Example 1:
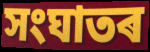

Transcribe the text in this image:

সংঘাতৰ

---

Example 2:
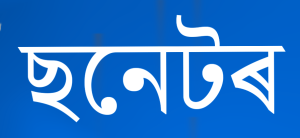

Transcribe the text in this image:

ছনেটৰ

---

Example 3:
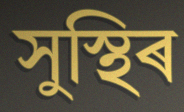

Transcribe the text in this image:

সুস্থিৰ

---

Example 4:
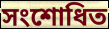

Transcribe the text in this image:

সংশোধিত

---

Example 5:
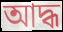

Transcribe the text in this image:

আদ্ধ